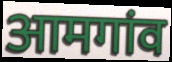
आमगांव